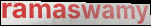
ramaswamy